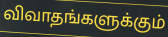
விவாதங்களுக்கும்